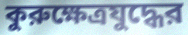
কুরুক্ষেত্রযুদ্ধের